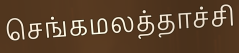
செங்கமலத்தாச்சி